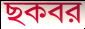
ছকবর